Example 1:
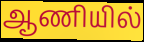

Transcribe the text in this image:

ஆணியில்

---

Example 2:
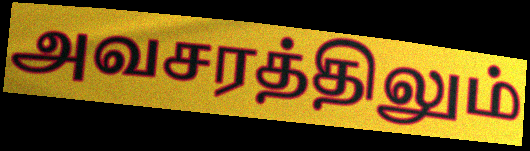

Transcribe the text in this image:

அவசரத்திலும்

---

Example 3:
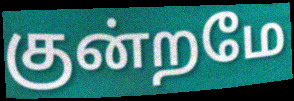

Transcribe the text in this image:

குன்றமே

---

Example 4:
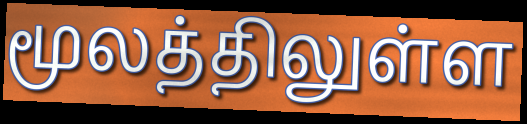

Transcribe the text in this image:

மூலத்திலுள்ள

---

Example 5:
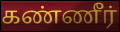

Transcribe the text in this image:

கண்ணீர்